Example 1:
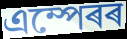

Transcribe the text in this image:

এম্পেৰৰ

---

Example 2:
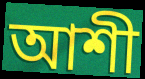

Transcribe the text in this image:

আশী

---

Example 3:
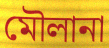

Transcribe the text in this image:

মৌলানা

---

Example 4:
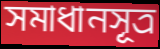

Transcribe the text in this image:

সমাধানসূত্ৰ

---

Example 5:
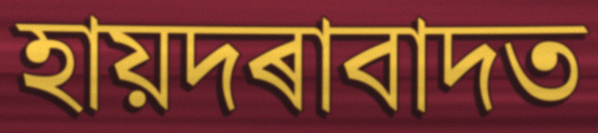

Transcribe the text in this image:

হায়দৰাবাদত